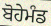
ਬੋਹੇਮੰਡ